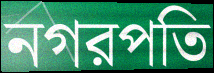
নগরপতি